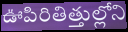
ఊపిరితిత్తుల్లోని